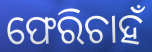
ଫେରିଚାହଁ